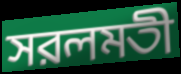
সরলমতী